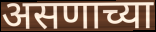
असणाच्या